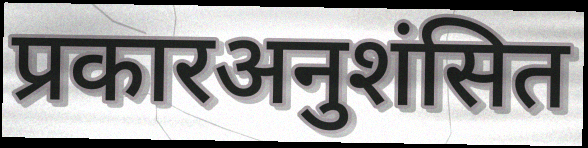
प्रकारअनुशंसित